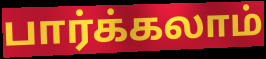
பார்க்கலாம்